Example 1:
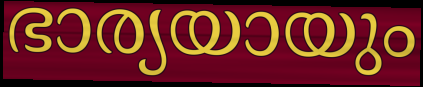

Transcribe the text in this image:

ഭാര്യയായും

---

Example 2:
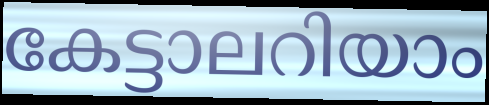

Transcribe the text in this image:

കേട്ടാലറിയാം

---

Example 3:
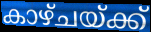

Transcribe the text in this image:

കാഴ്ചയ്ക്ക്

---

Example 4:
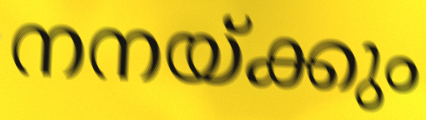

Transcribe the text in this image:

നനയ്ക്കും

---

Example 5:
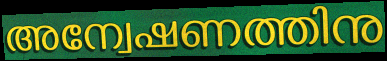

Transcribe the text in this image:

അന്വേഷണത്തിനു